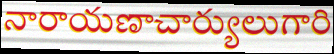
నారాయణాచార్యులుగారి